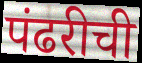
पंढरीची